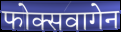
फोक्सवागेन